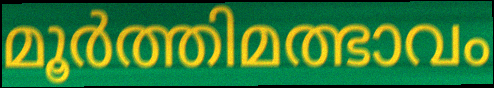
മൂർത്തിമത്ഭാവം